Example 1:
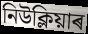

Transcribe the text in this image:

নিউক্লিয়াৰ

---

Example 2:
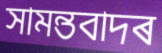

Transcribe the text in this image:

সামন্তবাদৰ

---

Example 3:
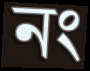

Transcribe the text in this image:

নং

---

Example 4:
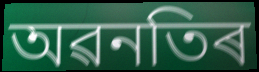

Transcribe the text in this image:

অৱনতিৰ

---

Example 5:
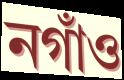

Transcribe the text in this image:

নগাঁও